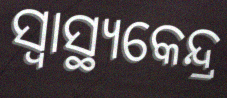
ସ୍ବାସ୍ଥ୍ୟକେନ୍ଦ୍ର